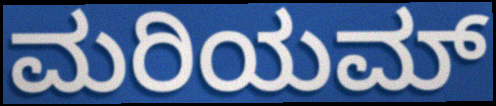
ಮರಿಯಮ್